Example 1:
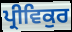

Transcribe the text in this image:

ਪ੍ਰੀਵਿਕੁਰ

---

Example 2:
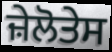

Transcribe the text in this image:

ਜ਼ੇਲੋਤੇਸ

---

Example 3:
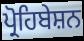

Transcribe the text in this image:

ਪ੍ਰੋਹਿਬੇਸ਼ਨ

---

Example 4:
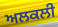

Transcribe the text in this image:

ਅਲਕਲੀ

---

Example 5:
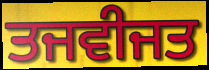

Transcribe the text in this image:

ਤਜਵੀਜਤ